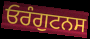
ਓਰੰਗੁਟਨਸ